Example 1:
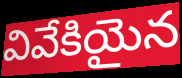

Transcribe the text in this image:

వివేకియైన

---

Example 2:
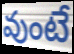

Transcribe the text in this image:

వుంటే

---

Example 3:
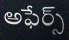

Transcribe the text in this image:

అఫేర్స్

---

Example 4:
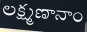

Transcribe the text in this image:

లక్ష్మణానాం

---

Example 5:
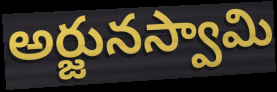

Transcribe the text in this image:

అర్జునస్వామి